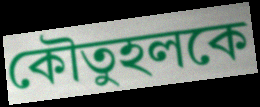
কৌতুহলকে